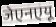
जेएनएयू